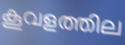
കൂവളത്തില